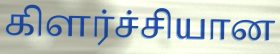
கிளர்ச்சியான